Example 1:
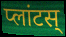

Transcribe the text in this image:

प्लांटस्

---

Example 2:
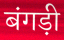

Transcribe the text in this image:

बंगड़ी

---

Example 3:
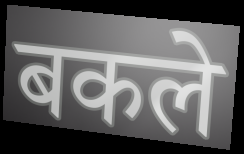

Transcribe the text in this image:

बकले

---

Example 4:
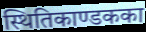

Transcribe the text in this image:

स्थितिकाण्डकका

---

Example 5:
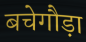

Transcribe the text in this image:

बचेगौड़ा